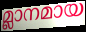
മ്ലാനമായ